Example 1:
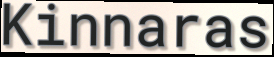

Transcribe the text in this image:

Kinnaras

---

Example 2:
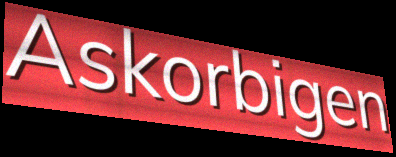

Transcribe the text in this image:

Askorbigen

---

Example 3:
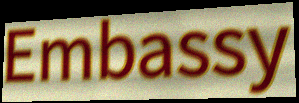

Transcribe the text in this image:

Embassy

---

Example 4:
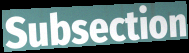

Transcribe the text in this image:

Subsection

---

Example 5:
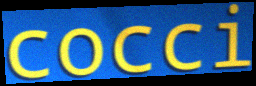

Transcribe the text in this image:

cocci